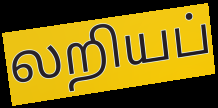
லறியப்